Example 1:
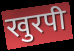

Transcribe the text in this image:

खुरपी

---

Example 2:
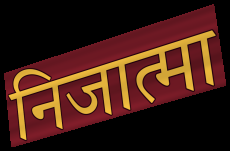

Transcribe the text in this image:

निजात्मा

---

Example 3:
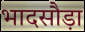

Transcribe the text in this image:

भादसौड़ा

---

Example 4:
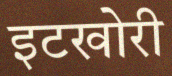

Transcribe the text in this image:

इटखोरी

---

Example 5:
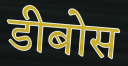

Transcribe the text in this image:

डीबोस